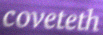
coveteth